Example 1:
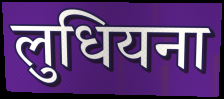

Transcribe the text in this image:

लुधियना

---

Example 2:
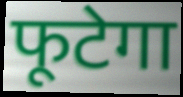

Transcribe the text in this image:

फूटेगा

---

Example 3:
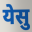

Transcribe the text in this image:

येसु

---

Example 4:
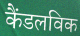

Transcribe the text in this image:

कैंडलविक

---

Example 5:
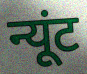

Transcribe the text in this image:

न्यूंट